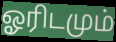
ஓரிடமும்